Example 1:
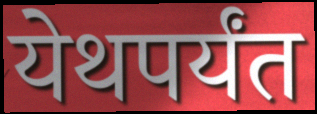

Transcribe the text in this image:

येथपर्यंत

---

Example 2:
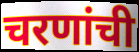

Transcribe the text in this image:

चरणांची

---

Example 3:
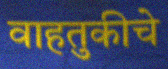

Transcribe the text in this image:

वाहतुकीचे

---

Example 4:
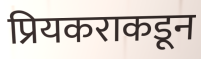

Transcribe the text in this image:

प्रियकराकडून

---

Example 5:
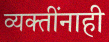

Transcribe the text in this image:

व्यक्तींनाही